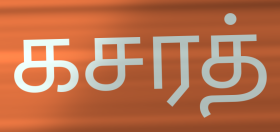
கசரத்